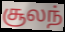
சூலந்